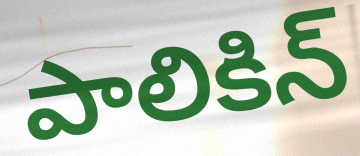
పాలికిన్